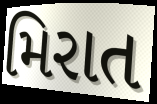
મિરાત